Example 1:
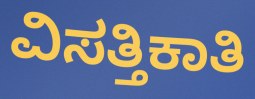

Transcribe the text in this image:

ವಿಸತ್ತಿಕಾತಿ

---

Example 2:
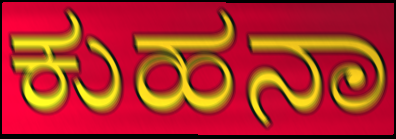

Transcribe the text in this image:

ಕುಹನಾ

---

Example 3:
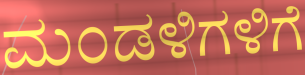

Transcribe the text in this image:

ಮಂಡಳಿಗಳಿಗೆ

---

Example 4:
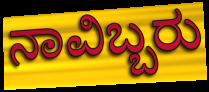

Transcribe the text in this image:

ನಾವಿಬ್ಬರು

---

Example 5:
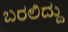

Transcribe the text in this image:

ಬರಲಿದ್ದು